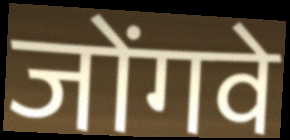
जोंगवे